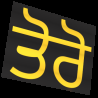
ਤੋਰੋ